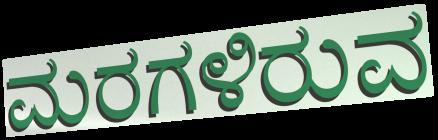
ಮರಗಳಿರುವ